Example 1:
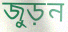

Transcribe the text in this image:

জুড়ন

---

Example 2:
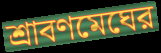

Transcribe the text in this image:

শ্রাবণমেঘের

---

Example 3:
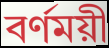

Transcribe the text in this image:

বর্ণময়ী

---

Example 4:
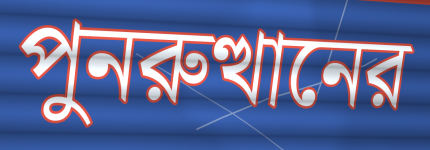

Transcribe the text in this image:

পুনরুত্থানের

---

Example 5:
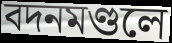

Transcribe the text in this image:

বদনমণ্ডলে